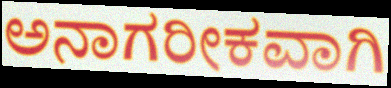
ಅನಾಗರೀಕವಾಗಿ